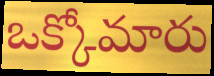
ఒక్కోమారు